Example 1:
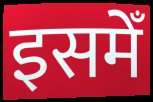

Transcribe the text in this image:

इसमेँ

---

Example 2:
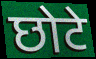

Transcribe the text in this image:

छोटे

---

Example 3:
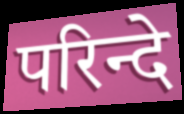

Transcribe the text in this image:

परिन्दे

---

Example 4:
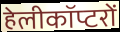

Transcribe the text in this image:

हेलीकॉप्‍टरों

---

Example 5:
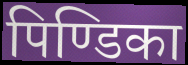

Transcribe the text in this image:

पिण्डिका